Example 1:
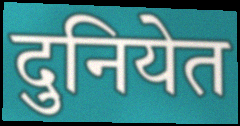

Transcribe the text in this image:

दुनियेत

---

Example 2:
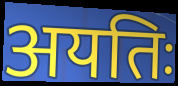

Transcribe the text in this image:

अयतिः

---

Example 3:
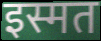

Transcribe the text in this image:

इस्मत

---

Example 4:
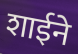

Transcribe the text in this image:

शाईने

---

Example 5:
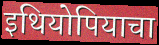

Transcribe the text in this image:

इथियोपियाचा